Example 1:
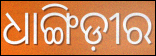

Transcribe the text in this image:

ଧାଙ୍ଗିଡ଼ୀର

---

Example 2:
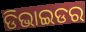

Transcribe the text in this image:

ଡିଭାଇଡର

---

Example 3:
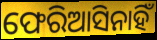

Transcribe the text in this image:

ଫେରିଆସିନାହିଁ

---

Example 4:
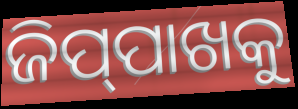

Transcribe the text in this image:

ଜିପ୍‌ପାଖକୁ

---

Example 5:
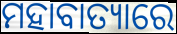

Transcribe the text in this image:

ମହାବାତ୍ୟାରେ